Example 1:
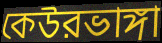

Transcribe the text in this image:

কেউরভাঙ্গা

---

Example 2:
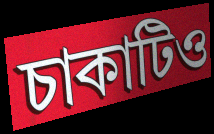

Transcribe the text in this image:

চাকাটিও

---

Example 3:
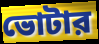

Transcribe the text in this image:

ভোটার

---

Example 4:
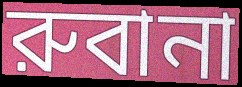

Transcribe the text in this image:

রুবানা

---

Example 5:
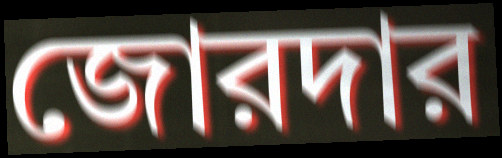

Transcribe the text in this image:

জোরদার